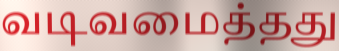
வடிவமைத்தது